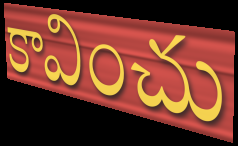
కావించు